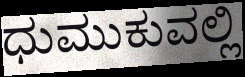
ಧುಮುಕುವಲ್ಲಿ